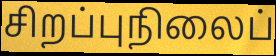
சிறப்புநிலைப்